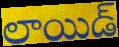
లాయిడ్